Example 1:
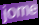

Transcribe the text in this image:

jome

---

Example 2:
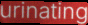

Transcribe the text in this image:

urinating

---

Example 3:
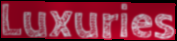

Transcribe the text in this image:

Luxuries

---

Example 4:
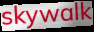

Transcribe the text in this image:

skywalk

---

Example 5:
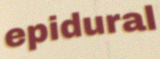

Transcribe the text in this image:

epidural